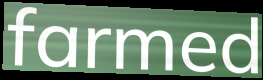
farmed